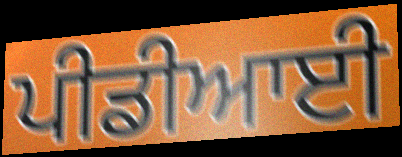
ਪੀਡੀਆਈ